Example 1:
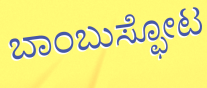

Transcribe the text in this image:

ಬಾಂಬುಸ್ಫೋಟ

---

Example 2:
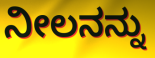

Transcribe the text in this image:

ನೀಲನನ್ನು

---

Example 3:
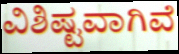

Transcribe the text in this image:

ವಿಶಿಷ್ಟವಾಗಿವೆ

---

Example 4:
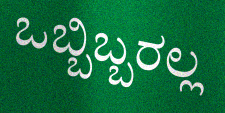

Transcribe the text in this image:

ಒಬ್ಬಿಬ್ಬರಲ್ಲ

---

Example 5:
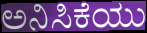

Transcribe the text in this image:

ಅನಿಸಿಕೆಯು